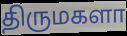
திருமகளா